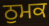
ਠੁਮਕ